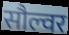
सौल्वर